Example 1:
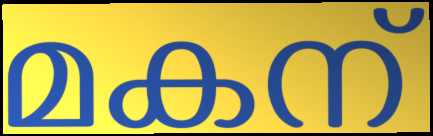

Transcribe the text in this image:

മകന്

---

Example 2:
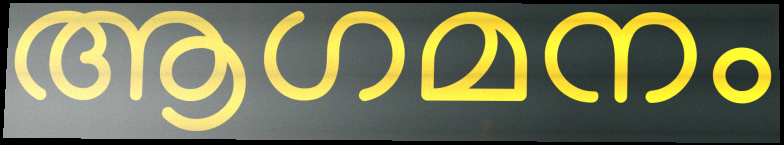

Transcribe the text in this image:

ആഗമനം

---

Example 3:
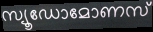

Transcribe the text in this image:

സ്യൂഡോമോണസ്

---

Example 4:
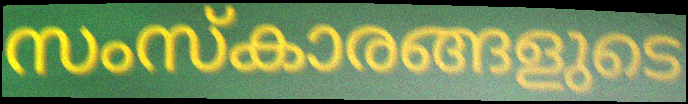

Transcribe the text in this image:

സംസ്കാരങ്ങളുടെ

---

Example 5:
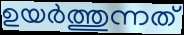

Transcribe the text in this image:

ഉയർത്തുന്നത്